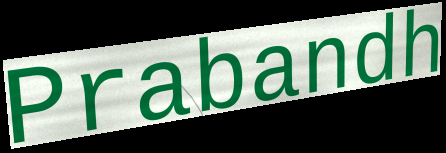
Prabandh